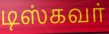
டிஸ்கவர்